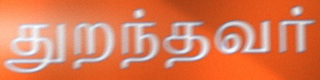
துறந்தவர்